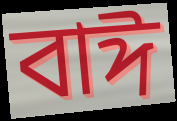
বাঈ